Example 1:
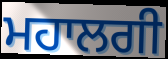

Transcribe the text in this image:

ਮਹਾਲਗੀ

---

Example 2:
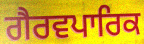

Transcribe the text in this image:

ਗੈਰਵਪਾਰਿਕ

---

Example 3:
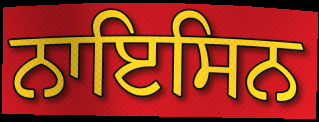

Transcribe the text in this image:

ਨਾਇਸਿਨ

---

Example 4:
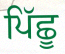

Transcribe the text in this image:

ਪਿੱਛੂ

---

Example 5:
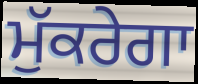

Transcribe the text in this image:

ਮੁੱਕਰੇਗਾ